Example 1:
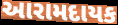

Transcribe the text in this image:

આરામદાયક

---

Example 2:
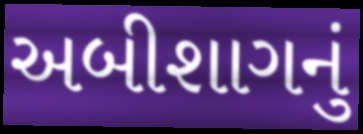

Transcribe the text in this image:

અબીશાગનું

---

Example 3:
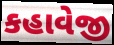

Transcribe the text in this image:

કહાવેજી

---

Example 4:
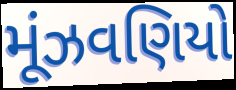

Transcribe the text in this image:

મૂંઝવણિયો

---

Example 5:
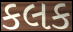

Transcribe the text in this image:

કલક